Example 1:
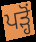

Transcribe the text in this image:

ਪੜ੍ਹੋਂ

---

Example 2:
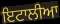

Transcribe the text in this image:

ਇਟਾਲੀਆ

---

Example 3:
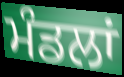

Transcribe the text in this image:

ਮੰਡਲਾਂ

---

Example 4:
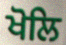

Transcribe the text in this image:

ਖੋਲਿ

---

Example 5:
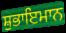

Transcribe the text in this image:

ਸ਼ੁਭਾਇਮਾਨ